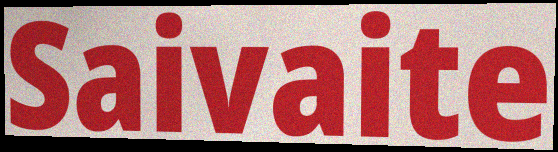
Saivaite